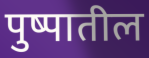
पुष्पातील